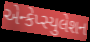
એન્કેપ્સ્યુલેશન